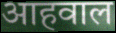
आहवाल